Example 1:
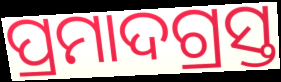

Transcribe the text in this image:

ପ୍ରମାଦଗ୍ରସ୍ତ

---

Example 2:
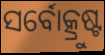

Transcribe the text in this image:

ସର୍ବୋତ୍କ୍ରୁଷ୍ଟ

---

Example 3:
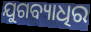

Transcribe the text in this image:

ଯୁଗବ୍ୟାଧିର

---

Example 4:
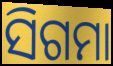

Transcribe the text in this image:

ସିଗମା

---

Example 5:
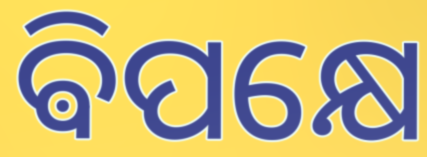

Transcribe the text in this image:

ଵିପକ୍ଷେ